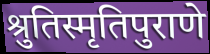
श्रुतिस्मृतिपुराणे